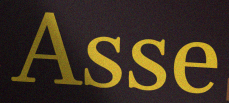
Asse